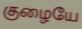
குழையே